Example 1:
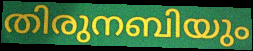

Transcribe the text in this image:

തിരുനബിയും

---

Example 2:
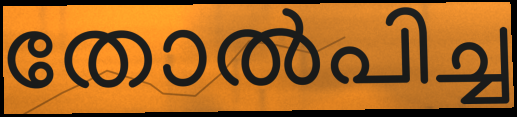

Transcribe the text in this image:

തോൽപിച്ച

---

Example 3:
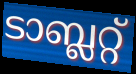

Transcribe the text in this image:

ടാബ്ലറ്റ്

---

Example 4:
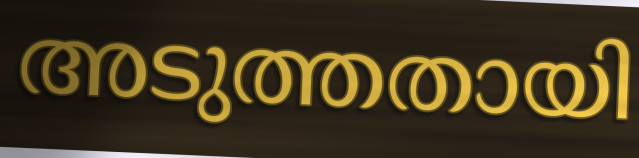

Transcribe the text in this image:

അടുത്തതായി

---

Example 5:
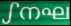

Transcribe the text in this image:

ഽനഘ